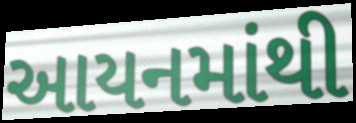
આયનમાંથી